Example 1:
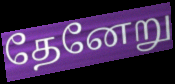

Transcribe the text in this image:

தேனேறு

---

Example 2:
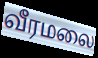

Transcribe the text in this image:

வீரமலை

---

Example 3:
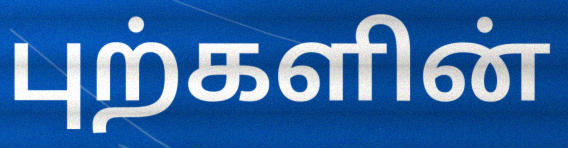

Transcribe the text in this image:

புற்களின்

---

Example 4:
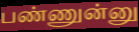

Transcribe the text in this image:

பண்ணுன்னு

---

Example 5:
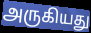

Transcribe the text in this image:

அருகியது